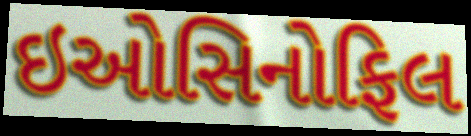
ઇઓસિનોફિલ